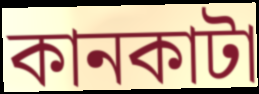
কানকাটা